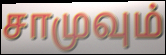
சாமுவும்